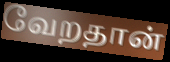
வேறதான்